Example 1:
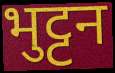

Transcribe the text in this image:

भुट्टन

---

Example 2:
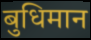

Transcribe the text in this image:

बुधिमान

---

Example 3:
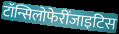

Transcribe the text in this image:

टॉन्सिलोफेरींजाइटिस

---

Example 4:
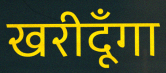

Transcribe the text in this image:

खरीदूँगा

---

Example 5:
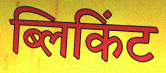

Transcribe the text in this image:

ब्लिकिंट